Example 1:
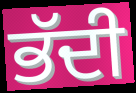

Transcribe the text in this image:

ਭੱਦੀ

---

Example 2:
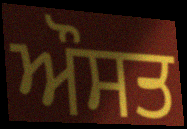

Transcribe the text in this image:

ਔਸਤ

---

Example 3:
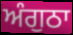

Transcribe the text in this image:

ਅੰਗੁਠਾ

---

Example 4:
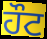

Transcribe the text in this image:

ਹੌਟ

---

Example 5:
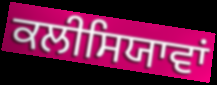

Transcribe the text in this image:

ਕਲੀਸਿਯਾਵਾਂ